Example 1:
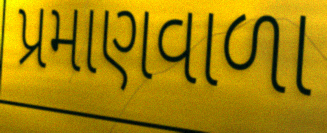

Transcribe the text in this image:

પ્રમાણવાળા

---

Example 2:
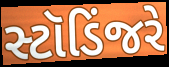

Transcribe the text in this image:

સ્ટૉડિંજરે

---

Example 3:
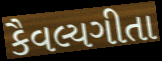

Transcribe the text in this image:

કૈવલ્યગીતા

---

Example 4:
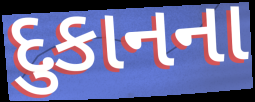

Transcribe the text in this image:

દુકાનના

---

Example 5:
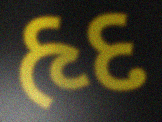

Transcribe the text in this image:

હૃદ